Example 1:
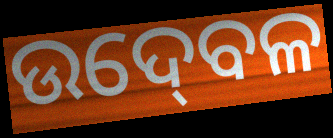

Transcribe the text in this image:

ଉଦ୍‍ବେଳ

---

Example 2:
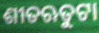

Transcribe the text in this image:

ଶୀତଋତୁଟା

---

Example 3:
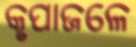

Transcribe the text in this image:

କୃପାଜଳେ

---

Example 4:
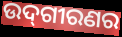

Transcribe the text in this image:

ଉଦ୍‌ଗୀରଣର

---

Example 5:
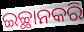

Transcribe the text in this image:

ଇଚ୍ଛାନକରି